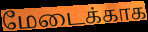
மேடைக்காக